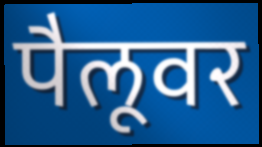
पैलूवर